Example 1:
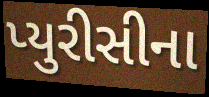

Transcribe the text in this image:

પ્યુરીસીના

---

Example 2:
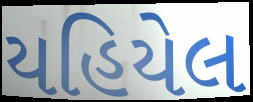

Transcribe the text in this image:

યહિયેલ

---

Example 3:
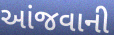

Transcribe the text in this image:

આંજવાની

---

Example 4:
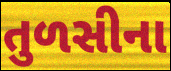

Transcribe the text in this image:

તુળસીના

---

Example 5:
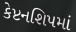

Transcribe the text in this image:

કેપ્ટનશિપમાં